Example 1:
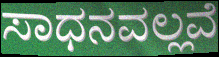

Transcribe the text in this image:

ಸಾಧನವಲ್ಲವೆ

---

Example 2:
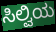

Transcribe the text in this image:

ಸಿಲ್ವಿಯ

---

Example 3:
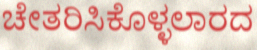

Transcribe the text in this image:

ಚೇತರಿಸಿಕೊಳ್ಳಲಾರದ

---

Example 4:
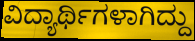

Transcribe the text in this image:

ವಿದ್ಯಾರ್ಥಿಗಳಾಗಿದ್ದು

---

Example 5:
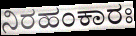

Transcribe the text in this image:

ನಿರಹಂಕಾರಃ